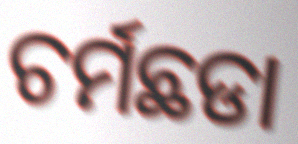
ଚର୍ମଛଡା